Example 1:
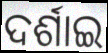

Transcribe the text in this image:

ଦର୍ଶାଇ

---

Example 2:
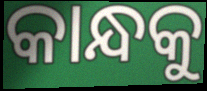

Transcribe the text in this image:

କାନ୍ଧକୁ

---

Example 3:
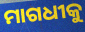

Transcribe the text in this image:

ମାଗଧୀକୁ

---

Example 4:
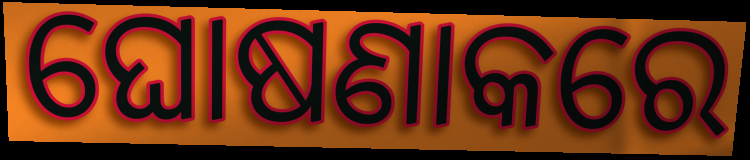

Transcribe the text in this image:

ଘୋଷଣାକରେ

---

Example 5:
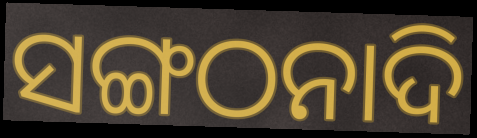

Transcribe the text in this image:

ସଙ୍ଗଠନାଦି